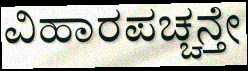
ವಿಹಾರಪಚ್ಚನ್ತೇ